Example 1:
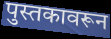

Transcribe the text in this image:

पुस्तकावरून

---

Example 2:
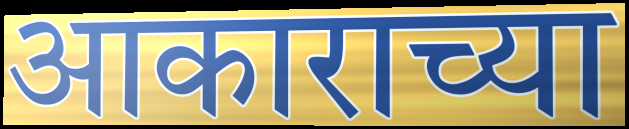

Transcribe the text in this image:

आकाराच्या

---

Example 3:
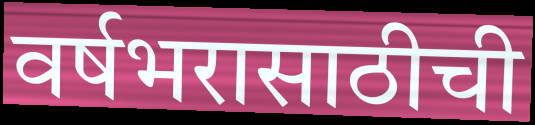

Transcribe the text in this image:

वर्षभरासाठीची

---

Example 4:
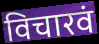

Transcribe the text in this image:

विचारवं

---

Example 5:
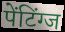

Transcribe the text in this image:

पेंटिंग्ज